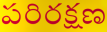
పరిరక్షణ